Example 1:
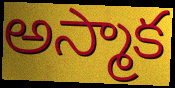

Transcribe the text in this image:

అస్మాక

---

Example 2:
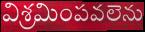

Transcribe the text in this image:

విశ్రమింపవలెను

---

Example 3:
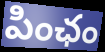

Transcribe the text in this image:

పింఛం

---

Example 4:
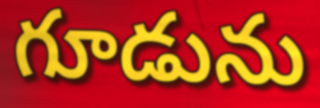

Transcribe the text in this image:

గూడును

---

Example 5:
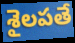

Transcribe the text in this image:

శైలపతే